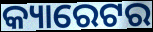
କ୍ୟାରେଟର